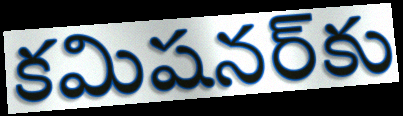
కమిషనర్‌కు